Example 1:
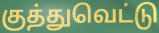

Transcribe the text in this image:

குத்துவெட்டு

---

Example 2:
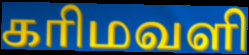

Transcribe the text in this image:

கரிமவளி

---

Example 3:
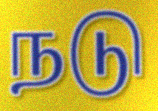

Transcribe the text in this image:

நடு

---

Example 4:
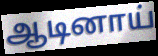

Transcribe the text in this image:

ஆடினாய்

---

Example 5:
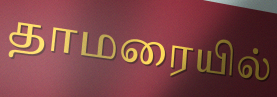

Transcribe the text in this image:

தாமரையில்